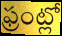
ఫ్రంట్లో